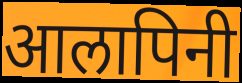
आलापिनी